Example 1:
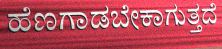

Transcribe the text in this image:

ಹೆಣಗಾಡಬೇಕಾಗುತ್ತದೆ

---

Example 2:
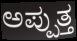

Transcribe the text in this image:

ಅಪ್ಪುತ್ತ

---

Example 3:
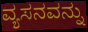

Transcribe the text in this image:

ವ್ಯಸನವನ್ನು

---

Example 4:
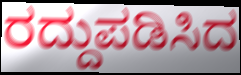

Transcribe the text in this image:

ರದ್ದುಪಡಿಸಿದ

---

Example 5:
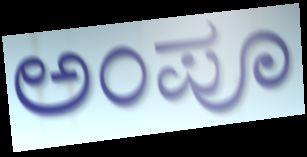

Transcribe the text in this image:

ಅಂಪೂ